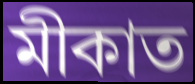
মীকাত